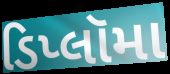
ડિપ્લૉમા